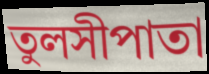
তুলসীপাতা